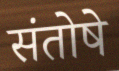
संतोषे